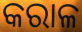
କରାଳ